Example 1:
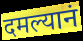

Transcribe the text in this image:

दमल्यानं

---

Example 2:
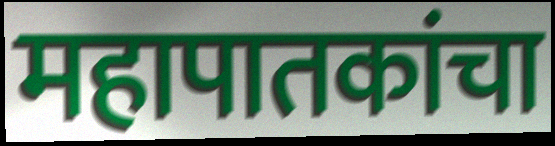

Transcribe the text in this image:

महापातकांचा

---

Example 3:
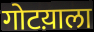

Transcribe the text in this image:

गोटय़ाला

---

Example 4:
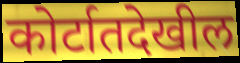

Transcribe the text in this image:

कोर्टातदेखील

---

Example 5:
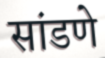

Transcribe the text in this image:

सांडणे